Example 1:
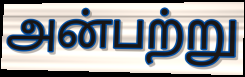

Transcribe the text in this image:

அன்பற்று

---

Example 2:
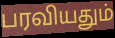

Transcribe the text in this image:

பரவியதும்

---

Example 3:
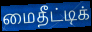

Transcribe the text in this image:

மைதீட்டிக்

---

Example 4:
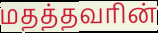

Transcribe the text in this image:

மதத்தவரின்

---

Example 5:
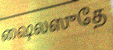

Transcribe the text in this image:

ஷைலஸுதே